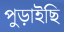
পুড়াইছি